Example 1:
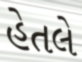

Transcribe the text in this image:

હેતલે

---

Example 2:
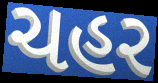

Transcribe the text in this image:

ચહર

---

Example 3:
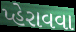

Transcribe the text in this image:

પ્હેરાવવા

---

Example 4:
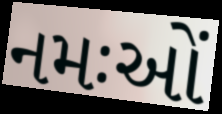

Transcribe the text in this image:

નમઃઓં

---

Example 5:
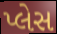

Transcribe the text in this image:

પ્લેસ